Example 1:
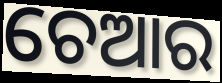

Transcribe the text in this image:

ଚେଆର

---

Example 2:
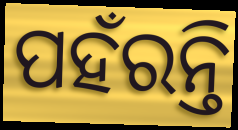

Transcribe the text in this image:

ପହଁରନ୍ତି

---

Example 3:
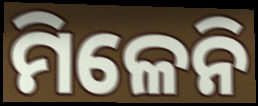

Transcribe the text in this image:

ମିଳେନି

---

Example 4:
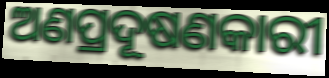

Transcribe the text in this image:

ଅଣପ୍ରଦୂଷଣକାରୀ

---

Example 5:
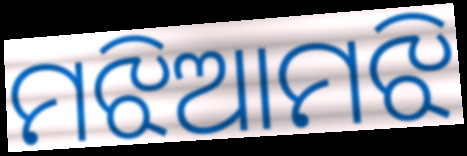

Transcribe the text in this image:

ମଝିଆମଝି